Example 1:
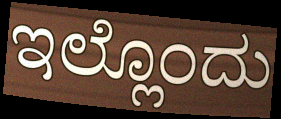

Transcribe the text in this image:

ಇಲ್ಲೊಂದು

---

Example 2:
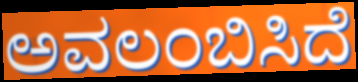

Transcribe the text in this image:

ಅವಲಂಬಿಸಿದೆ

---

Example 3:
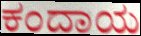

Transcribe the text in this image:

ಕಂದಾಯ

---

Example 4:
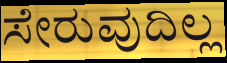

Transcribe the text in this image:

ಸೇರುವುದಿಲ್ಲ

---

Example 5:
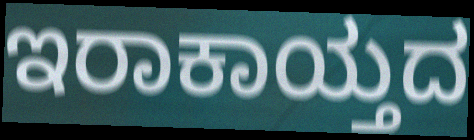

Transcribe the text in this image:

ಇರಾಕಾಯ್ತದ